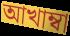
আখাম্বা